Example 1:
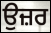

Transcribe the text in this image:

ਉਜ਼ਰ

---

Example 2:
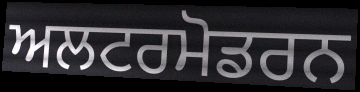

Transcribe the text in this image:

ਅਲਟਰਮੋਡਰਨ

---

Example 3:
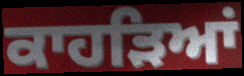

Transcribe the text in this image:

ਕਾਹੜਿਆਂ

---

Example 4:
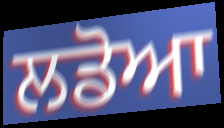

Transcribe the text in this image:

ਲਡੋਆ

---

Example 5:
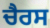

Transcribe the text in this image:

ਚੈਰਸ